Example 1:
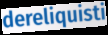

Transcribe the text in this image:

dereliquisti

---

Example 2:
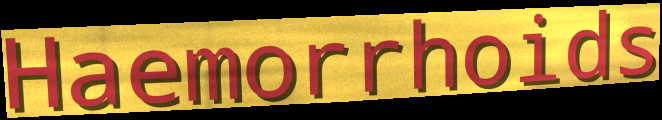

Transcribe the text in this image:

Haemorrhoids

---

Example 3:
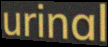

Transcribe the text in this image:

urinal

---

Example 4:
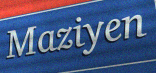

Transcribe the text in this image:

Maziyen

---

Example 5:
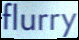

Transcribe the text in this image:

flurry